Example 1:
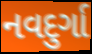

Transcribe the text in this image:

નવદુર્ગા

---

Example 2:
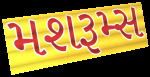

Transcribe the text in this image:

મશરૂમ્સ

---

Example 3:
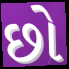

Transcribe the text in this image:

છો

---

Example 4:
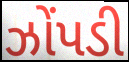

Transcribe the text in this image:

ઝોંપડી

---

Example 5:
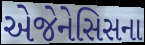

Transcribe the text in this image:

એજેનેસિસના